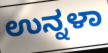
ಉನ್ನಳಾ